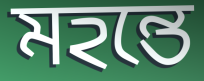
মহন্তে